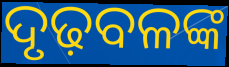
ଦୃଢ଼ବଳଙ୍କ